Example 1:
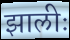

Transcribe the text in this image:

झालीः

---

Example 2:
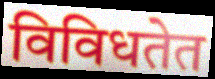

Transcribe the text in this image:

विविधतेत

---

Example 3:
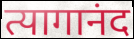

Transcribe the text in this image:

त्यागानंद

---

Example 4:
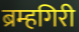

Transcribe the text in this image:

ब्रम्हगिरी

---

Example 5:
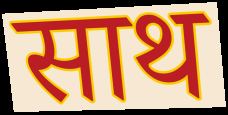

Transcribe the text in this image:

साथ